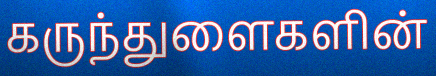
கருந்துளைகளின்